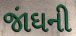
જાંઘની